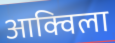
आक्विला